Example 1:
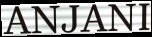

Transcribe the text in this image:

ANJANI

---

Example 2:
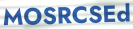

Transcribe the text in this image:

MOSRCSEd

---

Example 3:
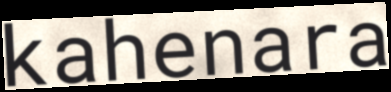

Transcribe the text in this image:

kahenara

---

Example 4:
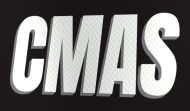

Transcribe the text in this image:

CMAS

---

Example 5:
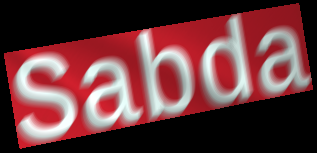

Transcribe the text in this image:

Sabda